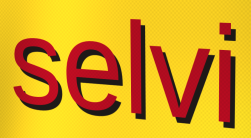
selvi